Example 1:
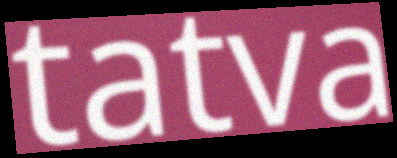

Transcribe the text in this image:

tatva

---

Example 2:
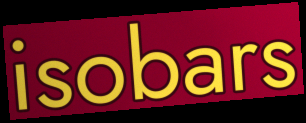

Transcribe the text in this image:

isobars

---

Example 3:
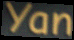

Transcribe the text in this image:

Yan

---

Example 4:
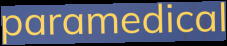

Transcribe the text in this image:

paramedical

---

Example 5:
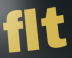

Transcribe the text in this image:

flt